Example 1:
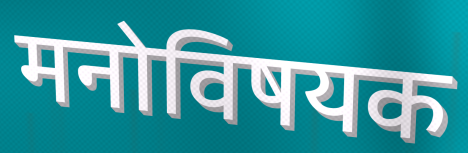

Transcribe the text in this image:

मनोविषयक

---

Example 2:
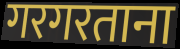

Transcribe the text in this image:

गरगरताना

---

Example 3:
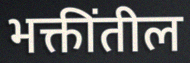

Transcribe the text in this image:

भक्तींतील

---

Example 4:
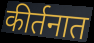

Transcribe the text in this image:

कीर्तनात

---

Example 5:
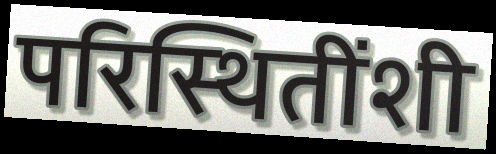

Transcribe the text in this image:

परिस्थितींशी